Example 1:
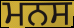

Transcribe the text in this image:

ਮਨਸ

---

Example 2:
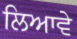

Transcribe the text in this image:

ਲਿਆਵੇ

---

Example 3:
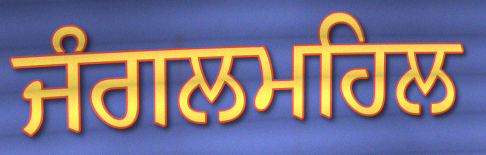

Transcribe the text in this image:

ਜੰਗਲਮਹਿਲ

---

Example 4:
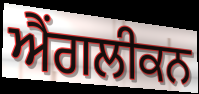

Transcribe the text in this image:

ਐਂਗਲੀਕਨ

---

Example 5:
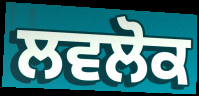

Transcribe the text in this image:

ਲਵਲੋਕ